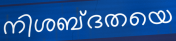
നിശബ്ദതയെ